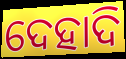
ଦେହାଦି